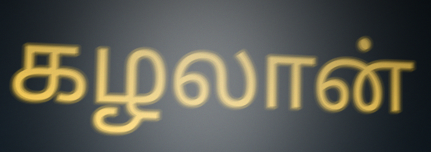
கழலான்